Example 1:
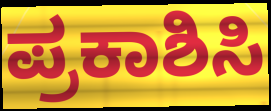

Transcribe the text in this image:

ಪ್ರಕಾಶಿಸಿ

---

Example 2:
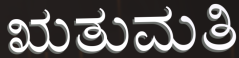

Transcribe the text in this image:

ಋತುಮತಿ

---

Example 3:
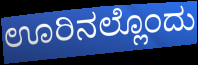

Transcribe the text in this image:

ಊರಿನಲ್ಲೊಂದು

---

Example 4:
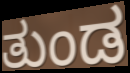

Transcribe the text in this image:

ತುಂಡ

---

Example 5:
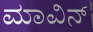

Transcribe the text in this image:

ಮಾವಿನ್